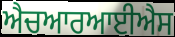
ਐਚਆਰਆਈਐਸ